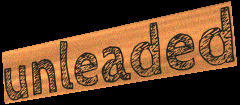
unleaded